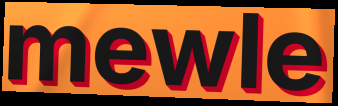
mewle